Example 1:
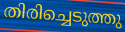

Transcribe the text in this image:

തിരിച്ചെടുത്തു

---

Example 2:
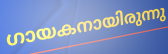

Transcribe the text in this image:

ഗായകനായിരുന്നു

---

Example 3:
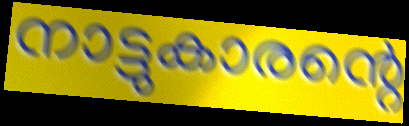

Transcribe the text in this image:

നാട്ടുകാരന്റെ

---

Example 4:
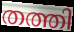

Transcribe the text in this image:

തത്തി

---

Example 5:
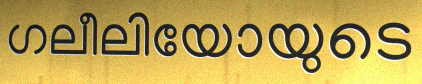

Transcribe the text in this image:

ഗലീലിയോയുടെ